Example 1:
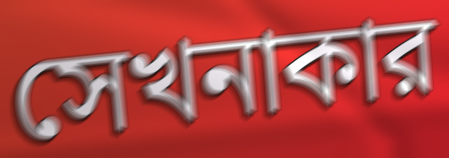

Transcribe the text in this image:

সেখনাকার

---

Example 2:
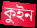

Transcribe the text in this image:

কুইন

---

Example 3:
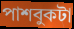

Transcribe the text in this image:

পাশবুকটা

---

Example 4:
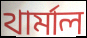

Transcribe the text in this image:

থার্মাল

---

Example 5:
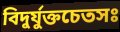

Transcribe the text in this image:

বিদুর্যুক্তচেতসঃ